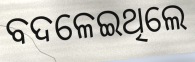
ବଦଳେଇଥିଲେ